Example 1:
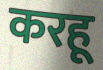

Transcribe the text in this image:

करहू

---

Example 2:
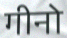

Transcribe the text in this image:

गीनो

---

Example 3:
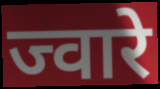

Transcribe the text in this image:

ज्वारे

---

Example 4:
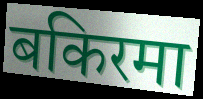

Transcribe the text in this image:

बकिरमा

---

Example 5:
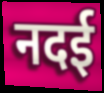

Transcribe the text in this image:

नदई